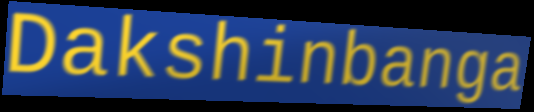
Dakshinbanga